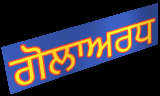
ਗੋਲਾਅਰਧ